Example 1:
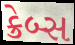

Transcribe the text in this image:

ક્રેબ્સ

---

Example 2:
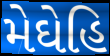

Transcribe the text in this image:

મેઘેહિ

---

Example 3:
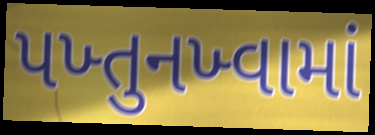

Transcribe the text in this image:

પખ્તુનખ્વામાં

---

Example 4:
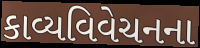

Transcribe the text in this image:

કાવ્યવિવેચનના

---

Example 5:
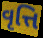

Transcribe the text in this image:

વૃત્તિ